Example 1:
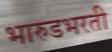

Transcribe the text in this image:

भारुडभरती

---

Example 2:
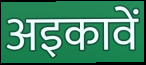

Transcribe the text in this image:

अइकावें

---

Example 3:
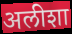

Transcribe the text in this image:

अलीशा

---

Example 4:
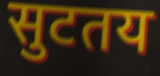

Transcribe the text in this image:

सुटतय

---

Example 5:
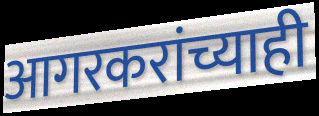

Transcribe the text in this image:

आगरकरांच्याही